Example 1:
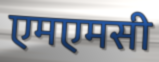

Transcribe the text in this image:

एमएमसी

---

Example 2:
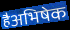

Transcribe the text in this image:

हैअभिषेक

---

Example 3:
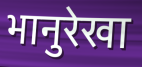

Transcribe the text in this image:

भानुरेखा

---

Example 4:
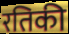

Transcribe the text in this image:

रतिकी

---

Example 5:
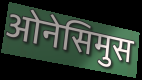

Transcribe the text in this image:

ओनेसिमुस